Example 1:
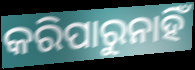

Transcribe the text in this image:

କରିପାରୁନାହିଁ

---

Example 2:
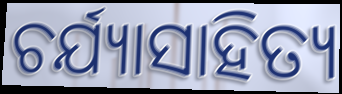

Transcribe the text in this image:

ଚର୍ଯ୍ୟାସାହିତ୍ୟ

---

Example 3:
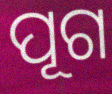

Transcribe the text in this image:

ପୂଗ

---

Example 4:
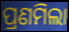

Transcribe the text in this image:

ପ୍ରଣମିଲା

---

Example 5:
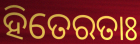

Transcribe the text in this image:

ହିତେରତାଃ